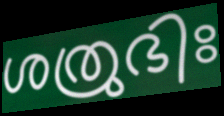
ശത്രുഭിഃ